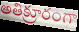
అతిక్రూరంగా